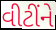
વીટીંને